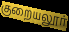
குறையலூர்